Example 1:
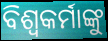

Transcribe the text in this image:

ବିଶ୍ଵକର୍ମାଙ୍କୁ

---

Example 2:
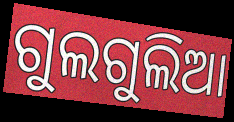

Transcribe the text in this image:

ଗୁଲଗୁଲିଆ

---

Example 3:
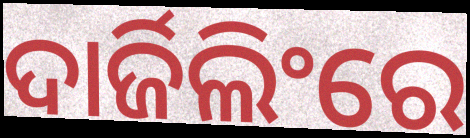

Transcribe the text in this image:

ଦାର୍ଜିଲିଂରେ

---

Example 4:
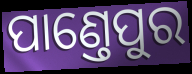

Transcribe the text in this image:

ପାଣ୍ତେପୁର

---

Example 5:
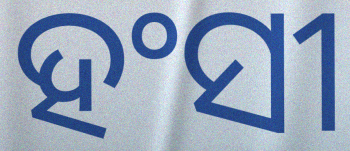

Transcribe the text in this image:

ହଂସୀ